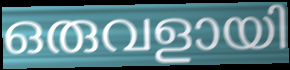
ഒരുവളായി